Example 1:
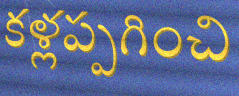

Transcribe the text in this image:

కళ్లప్పగించి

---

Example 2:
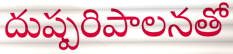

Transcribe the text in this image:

దుష్పరిపాలనతో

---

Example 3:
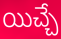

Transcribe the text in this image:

యిచ్చే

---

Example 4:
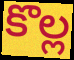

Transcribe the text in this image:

కొల్ల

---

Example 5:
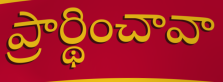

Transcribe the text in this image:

ప్రార్థించావా